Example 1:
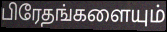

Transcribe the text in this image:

பிரேதங்களையும்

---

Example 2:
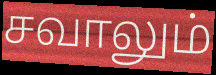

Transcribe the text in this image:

சவாலும்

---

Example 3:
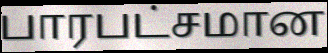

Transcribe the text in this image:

பாரபட்சமான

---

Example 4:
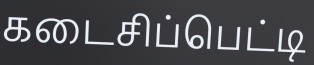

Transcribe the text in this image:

கடைசிப்பெட்டி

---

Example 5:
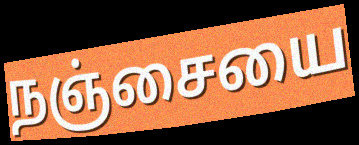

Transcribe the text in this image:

நஞ்சையை